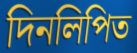
দিনলিপিত